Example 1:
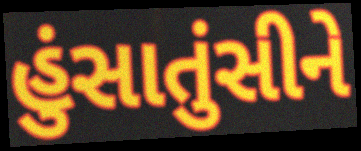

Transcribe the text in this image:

હુંસાતુંસીને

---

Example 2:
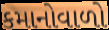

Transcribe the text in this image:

કમાનોવાળો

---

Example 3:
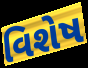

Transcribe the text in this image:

વિશેષ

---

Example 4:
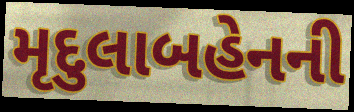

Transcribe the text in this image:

મૃદુલાબહેનની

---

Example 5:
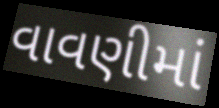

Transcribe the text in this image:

વાવણીમાં